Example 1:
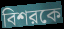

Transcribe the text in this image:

বিশরকে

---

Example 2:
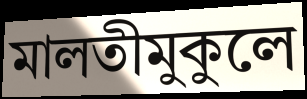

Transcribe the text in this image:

মালতীমুকুলে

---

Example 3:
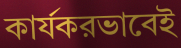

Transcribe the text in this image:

কার্যকরভাবেই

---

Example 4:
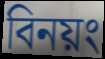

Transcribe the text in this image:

বিনয়ং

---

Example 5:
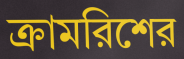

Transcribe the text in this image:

ক্রামরিশের